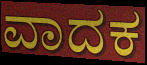
ವಾದಕ